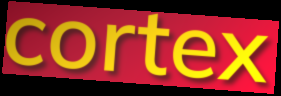
cortex